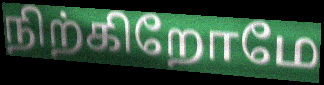
நிற்கிறோமே